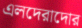
এলদেরাদোর